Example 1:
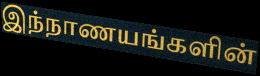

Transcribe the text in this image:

இந்நாணயங்களின்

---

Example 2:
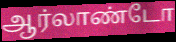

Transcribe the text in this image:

ஆர்லாண்டோ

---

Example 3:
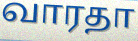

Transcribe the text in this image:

வாரதா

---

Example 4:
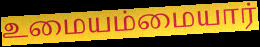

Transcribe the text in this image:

உமையம்மையார்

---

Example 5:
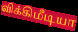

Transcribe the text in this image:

விக்கிமீடியா